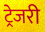
ट्रेजरी